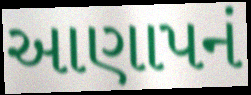
આણાપનં